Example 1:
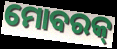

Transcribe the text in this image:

ମୋବରକ୍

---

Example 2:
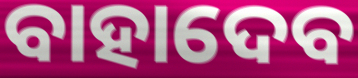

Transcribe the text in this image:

ବାହାଦେବ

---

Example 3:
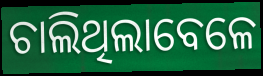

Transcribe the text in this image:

ଚାଲିଥିଲାବେଳେ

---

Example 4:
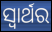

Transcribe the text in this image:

ସ୍ଵାର୍ଥର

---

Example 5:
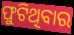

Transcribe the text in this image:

ଫୁଟିଥିବାର